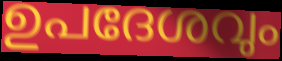
ഉപദേശവും